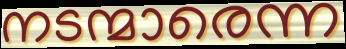
നടന്മാരെന്ന